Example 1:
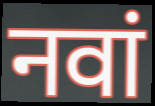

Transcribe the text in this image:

नवां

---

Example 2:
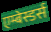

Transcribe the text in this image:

एम्बेस्डर्स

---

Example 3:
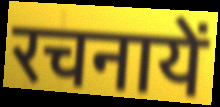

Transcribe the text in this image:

रचनायें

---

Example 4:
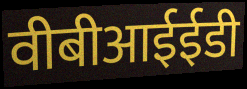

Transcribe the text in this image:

वीबीआईईडी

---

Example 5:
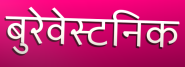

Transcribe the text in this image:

बुरेवेस्टनिक